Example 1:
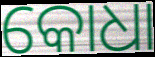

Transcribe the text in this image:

କୋଧା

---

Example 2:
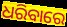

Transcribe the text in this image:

ଧରିବାରେ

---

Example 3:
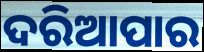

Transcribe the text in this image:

ଦରିଆପାର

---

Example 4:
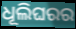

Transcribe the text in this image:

ଧୂଲିଘରର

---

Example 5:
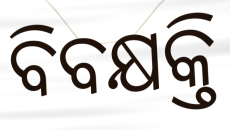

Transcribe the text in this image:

ବିବକ୍ଷକ୍ତି